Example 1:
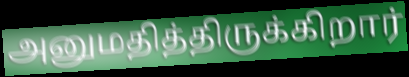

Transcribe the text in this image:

அனுமதித்திருக்கிறார்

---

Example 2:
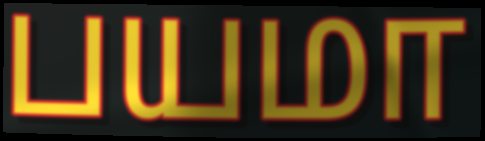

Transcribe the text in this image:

பயமா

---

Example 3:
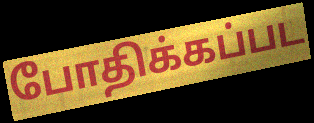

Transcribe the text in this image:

போதிக்கப்பட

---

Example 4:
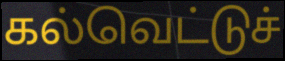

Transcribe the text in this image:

கல்வெட்டுச்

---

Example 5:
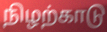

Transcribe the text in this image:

நிழற்காடு